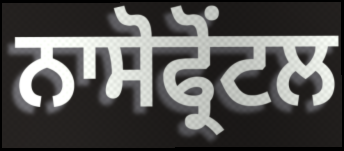
ਨਾਸੋਫ੍ਰੋਂਟਲ